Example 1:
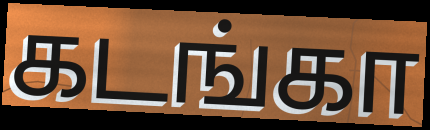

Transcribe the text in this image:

கடங்கா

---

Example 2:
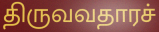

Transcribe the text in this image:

திருவவதாரச்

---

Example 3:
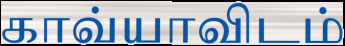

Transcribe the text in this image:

காவ்யாவிடம்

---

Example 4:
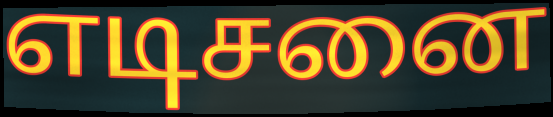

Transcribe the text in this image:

எடிசனை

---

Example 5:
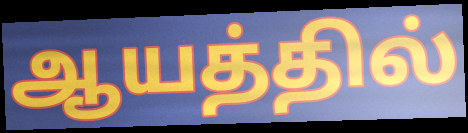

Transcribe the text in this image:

ஆயத்தில்